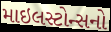
માઇલસ્ટોન્સનો